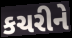
કચરીને